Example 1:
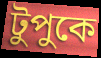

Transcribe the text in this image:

টুপুকে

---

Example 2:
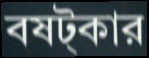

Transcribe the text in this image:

বষট্কার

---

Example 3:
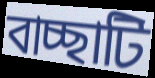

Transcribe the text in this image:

বাচ্ছাটি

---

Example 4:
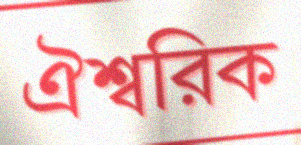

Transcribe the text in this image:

ঐশ্বরিক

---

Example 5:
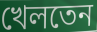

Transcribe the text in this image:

খেলতেন